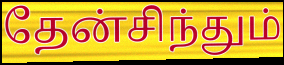
தேன்சிந்தும்